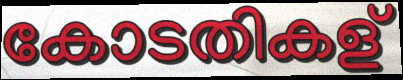
കോടതികള്